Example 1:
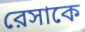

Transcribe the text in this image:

রেসাকে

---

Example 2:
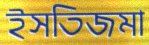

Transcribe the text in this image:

ইসতিজমা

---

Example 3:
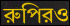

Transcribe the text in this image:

রুপিরও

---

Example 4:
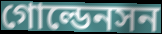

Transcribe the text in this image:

গোল্ডেনসন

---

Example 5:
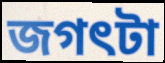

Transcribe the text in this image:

জগৎটা